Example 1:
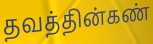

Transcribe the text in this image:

தவத்தின்கண்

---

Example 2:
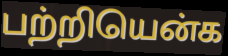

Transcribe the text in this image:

பற்றியென்க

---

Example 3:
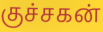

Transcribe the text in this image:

குச்சகன்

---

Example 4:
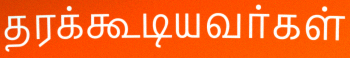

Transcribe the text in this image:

தரக்கூடியவர்கள்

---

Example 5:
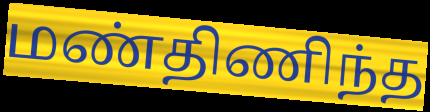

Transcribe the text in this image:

மண்திணிந்த